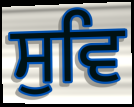
ਸੁਵਿ